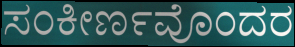
ಸಂಕೀರ್ಣವೊಂದರ